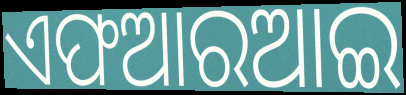
ଏଫଆରଆଇ